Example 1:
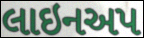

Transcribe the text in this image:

લાઇનઅપ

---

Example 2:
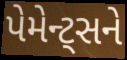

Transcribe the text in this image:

પેમેન્ટ્સને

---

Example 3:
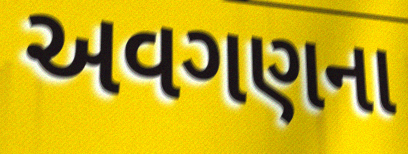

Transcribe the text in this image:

અવગણના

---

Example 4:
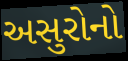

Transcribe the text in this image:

અસુરોનો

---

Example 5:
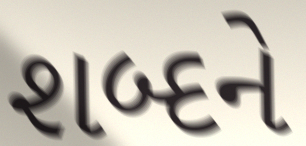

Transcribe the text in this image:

શબ્દને